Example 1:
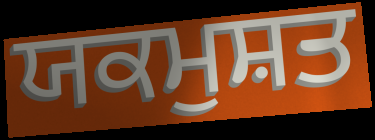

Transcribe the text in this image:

ਯਕਮੁਸ਼ਤ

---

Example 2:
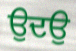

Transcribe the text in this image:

ਉਦਉ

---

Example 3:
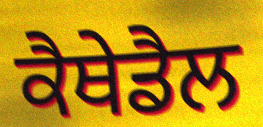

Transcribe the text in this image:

ਕੈਥੇਡੈਲ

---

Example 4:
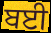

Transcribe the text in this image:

ਬਈ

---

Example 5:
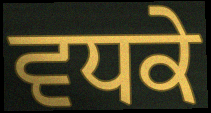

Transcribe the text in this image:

ਵਧਕੇ